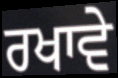
ਰਖਾਵੇ